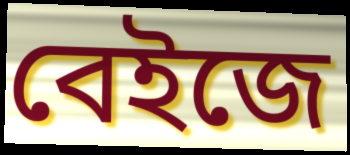
বেইজে